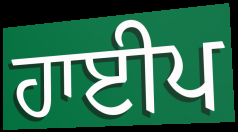
ਹਾਈਪ